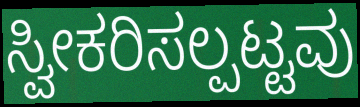
ಸ್ವೀಕರಿಸಲ್ಪಟ್ಟವು